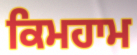
ਕਿਮਹਾਮ